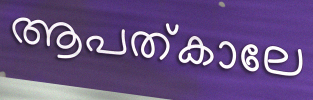
ആപത്കാലേ